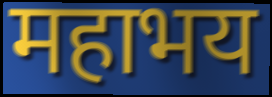
महाभय